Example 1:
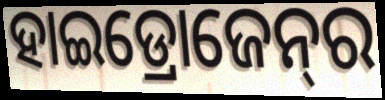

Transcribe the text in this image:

ହାଇଡ୍ରୋଜେନ୍‌ର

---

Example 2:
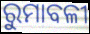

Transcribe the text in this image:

ରୁମାବଳୀ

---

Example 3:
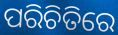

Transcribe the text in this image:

ପରିଚିତିରେ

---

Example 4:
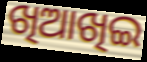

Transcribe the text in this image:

ଖିଆଖିଇ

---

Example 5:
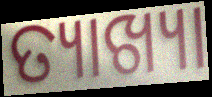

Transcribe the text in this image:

ତ୍ୟାଖ୍ୟା